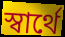
স্বার্থে